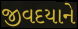
જીવદયાને